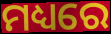
ମଧ୍ୟରେ